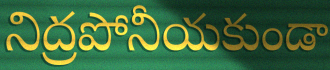
నిద్రపోనీయకుండా